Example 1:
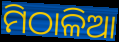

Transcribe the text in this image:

ମିଠାଳିଆ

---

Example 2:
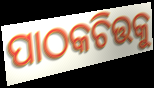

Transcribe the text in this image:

ପାଠକଚିତ୍ତକୁ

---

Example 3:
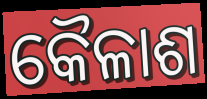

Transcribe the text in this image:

କୈଳାଶ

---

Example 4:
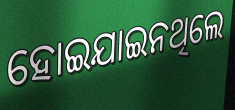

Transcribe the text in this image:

ହୋଇଯାଇନଥିଲେ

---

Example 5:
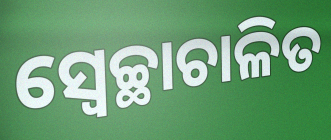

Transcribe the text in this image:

ସ୍ୱେଚ୍ଛାଚାଳିତ